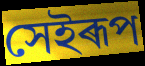
সেইৰূপ